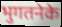
भुगतनेके